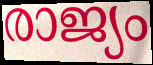
രാജ്യം